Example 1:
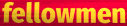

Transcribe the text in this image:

fellowmen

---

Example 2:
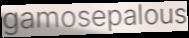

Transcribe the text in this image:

gamosepalous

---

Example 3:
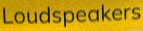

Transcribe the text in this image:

Loudspeakers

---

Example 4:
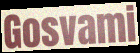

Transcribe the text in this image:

Gosvami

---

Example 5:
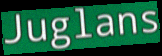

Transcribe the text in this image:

Juglans